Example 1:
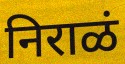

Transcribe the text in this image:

निराळं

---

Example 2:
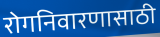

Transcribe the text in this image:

रोगनिवारणासाठी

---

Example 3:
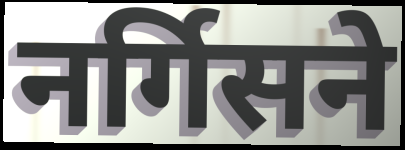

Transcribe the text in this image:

नर्गिसने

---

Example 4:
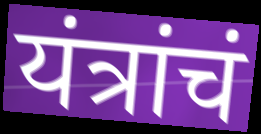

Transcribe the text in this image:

यंत्रांचं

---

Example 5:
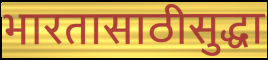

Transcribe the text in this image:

भारतासाठीसुद्धा